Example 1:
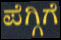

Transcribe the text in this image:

ಪೆಗ್ಗಿಗೆ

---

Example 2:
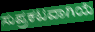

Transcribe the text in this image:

ಸುಪ್ರಕಟವಾಗಿಯೆ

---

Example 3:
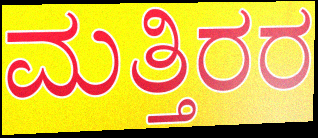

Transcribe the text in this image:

ಮತ್ತಿರರ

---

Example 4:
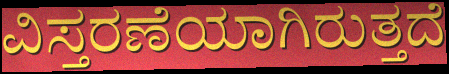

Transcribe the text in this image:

ವಿಸ್ತರಣೆಯಾಗಿರುತ್ತದೆ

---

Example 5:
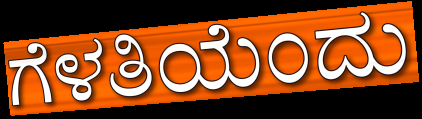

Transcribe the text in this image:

ಗೆಳತಿಯೆಂದು